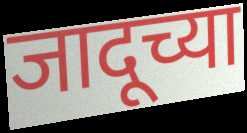
जादूच्या